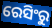
ରେସିଂରୁ